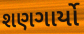
શણગાર્યો